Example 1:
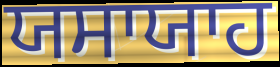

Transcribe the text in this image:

ਯਸਾਯਾਹ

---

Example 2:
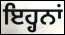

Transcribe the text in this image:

ਇਹ੍ਹਨਾਂ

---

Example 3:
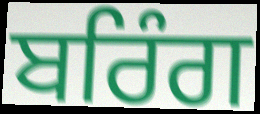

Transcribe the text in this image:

ਬਰਿੰਗ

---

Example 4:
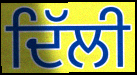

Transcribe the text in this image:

ਦਿੱਲੀ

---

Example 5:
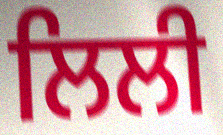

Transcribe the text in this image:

ਲਿਲੀ